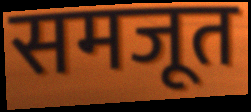
समजूत